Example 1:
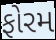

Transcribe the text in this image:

ફોરમ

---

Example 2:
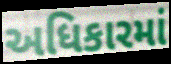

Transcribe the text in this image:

અધિકારમાં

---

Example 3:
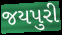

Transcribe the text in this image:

જયપુરી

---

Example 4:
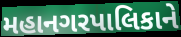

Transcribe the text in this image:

મહાનગરપાલિકાને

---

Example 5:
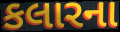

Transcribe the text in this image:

કલારના